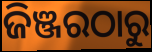
ଜିଞ୍ଜରଠାରୁ